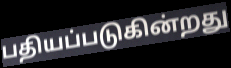
பதியப்படுகின்றது